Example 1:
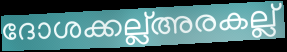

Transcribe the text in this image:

ദോശക്കല്ല്അരകല്ല്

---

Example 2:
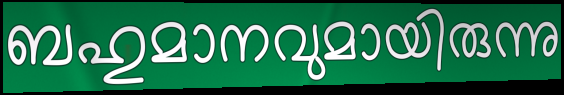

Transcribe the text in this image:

ബഹുമാനവുമായിരുന്നു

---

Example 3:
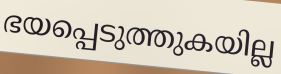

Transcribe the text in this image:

ഭയപ്പെടുത്തുകയില്ല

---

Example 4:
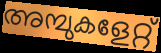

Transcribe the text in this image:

അമ്പുകളേറ്റ്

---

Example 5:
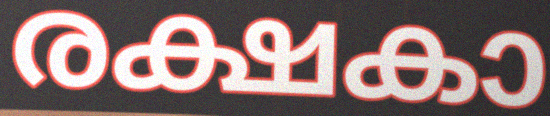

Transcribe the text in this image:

രക്ഷകാ